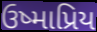
ઉષ્માપ્રિય